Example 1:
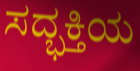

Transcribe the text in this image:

ಸದ್ಭಕ್ತಿಯ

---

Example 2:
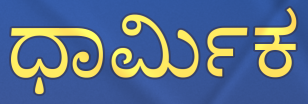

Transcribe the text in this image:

ಧಾರ್ಮಿಕ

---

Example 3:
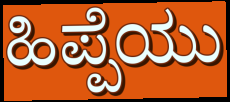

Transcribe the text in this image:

ಹಿಪ್ಪೆಯು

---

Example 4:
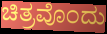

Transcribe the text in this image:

ಚಿತ್ರವೊಂದು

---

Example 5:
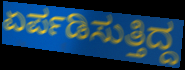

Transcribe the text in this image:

ಏರ್ಪಡಿಸುತ್ತಿದ್ದ